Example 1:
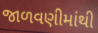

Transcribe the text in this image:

જાળવણીમાંથી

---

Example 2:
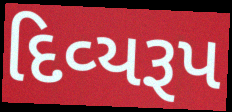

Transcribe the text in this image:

દિવ્‍યરૂપ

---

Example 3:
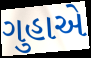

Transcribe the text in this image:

ગુહાએ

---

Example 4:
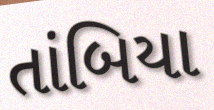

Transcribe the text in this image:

તાંબિયા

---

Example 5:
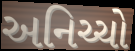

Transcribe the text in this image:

અનિચ્ચો